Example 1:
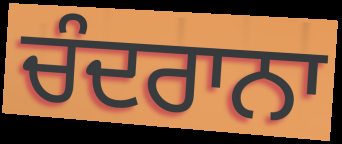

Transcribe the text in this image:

ਚੰਦਰਾਨਾ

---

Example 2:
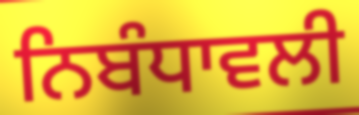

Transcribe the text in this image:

ਨਿਬੰਧਾਵਲੀ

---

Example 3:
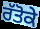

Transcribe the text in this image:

ਰੱਤੋਕੇ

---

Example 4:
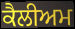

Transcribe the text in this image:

ਕੈਲੀਅਮ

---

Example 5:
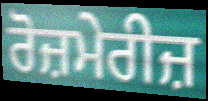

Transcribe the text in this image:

ਰੋਜ਼ਮੇਰੀਜ਼